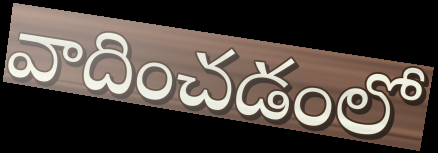
వాదించడంలో